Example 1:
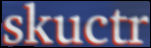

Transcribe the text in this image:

skuctr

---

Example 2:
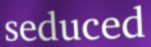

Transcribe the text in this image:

seduced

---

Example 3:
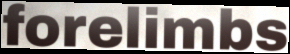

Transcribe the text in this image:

forelimbs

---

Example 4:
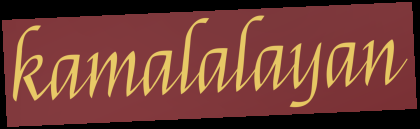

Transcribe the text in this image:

kamalalayan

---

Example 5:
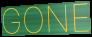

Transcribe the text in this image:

GONE